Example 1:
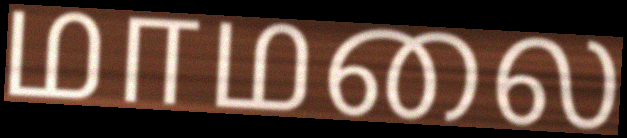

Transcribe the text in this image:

மாமலை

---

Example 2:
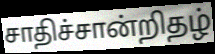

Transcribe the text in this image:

சாதிச்சான்றிதழ்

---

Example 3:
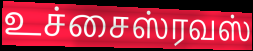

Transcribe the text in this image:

உச்சைஸ்ரவஸ்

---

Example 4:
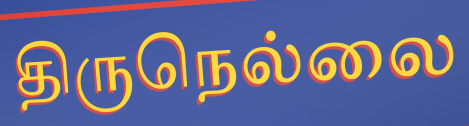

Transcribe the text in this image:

திருநெல்லை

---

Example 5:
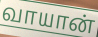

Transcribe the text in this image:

வாயான்